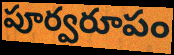
పూర్వరూపం